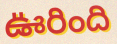
ఊరింది